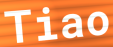
Tiao